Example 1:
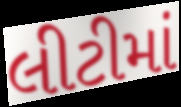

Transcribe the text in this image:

લીટીમાં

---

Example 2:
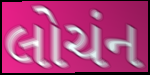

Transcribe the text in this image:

લોચંન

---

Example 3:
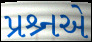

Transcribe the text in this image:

પ્રશ્ર્નએ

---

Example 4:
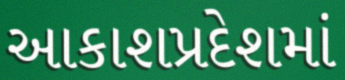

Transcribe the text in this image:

આકાશપ્રદેશમાં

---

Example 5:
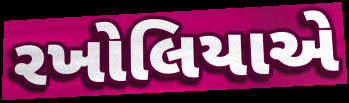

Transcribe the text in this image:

રખોલિયાએ